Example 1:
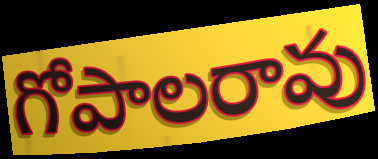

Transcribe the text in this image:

గోపాలరావు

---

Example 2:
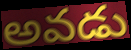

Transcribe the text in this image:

అవడు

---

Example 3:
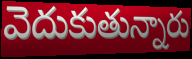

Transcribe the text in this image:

వెదుకుతున్నారు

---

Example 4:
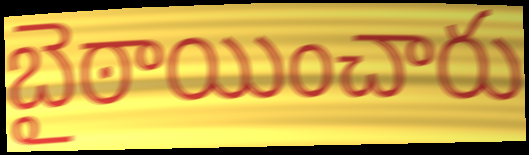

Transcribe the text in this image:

బైఠాయించారు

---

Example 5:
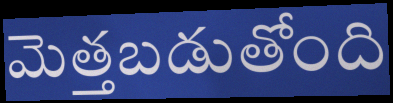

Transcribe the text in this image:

మెత్తబడుతోంది